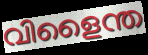
വിളൈന്ത